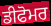
ਡੀਫੋਮਰ